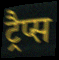
ट्रैप्स